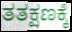
ತತಕ್ಷಣಕ್ಕೆ